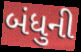
બંધુની